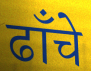
ढाँचे